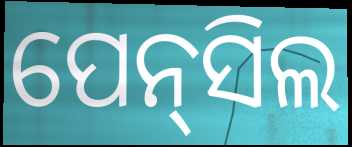
ପେନ୍‌ସିଲ